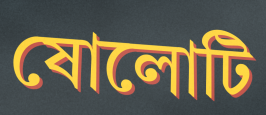
ষোলোটি